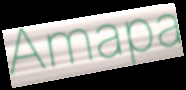
Amapa